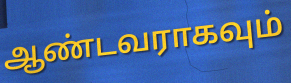
ஆண்டவராகவும்